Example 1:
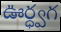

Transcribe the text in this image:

ఊర్ధ్వగ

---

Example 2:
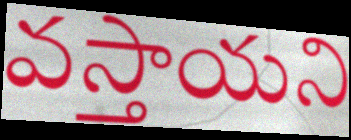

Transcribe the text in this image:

వస్తాయని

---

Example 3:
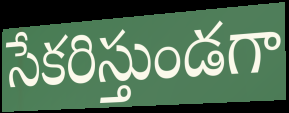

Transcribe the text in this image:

సేకరిస్తుండగా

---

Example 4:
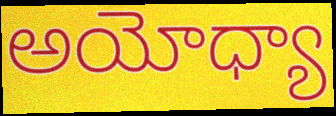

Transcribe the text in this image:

అయోధ్యా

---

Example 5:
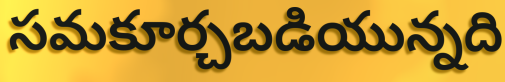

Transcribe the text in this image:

సమకూర్చబడియున్నది